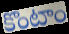
కొంటాం